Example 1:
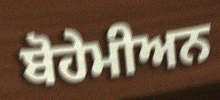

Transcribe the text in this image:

ਬੋਹੇਮੀਅਨ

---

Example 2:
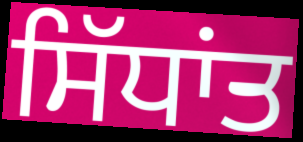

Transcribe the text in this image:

ਸਿੱਧਾਂਤ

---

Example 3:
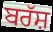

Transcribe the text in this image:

ਬਰੱਸ਼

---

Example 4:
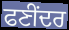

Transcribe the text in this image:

ਫਣੀਂਦਰ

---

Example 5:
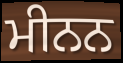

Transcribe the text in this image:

ਮੀਨਨ